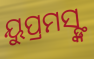
ୟୁପ୍ରମସ୍ଙ୍କ